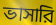
ভাসারি